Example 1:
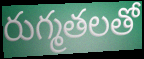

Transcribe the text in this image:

రుగ్మతలతో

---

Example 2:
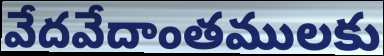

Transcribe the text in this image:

వేదవేదాంతములకు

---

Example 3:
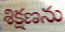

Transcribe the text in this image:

శిక్షణను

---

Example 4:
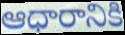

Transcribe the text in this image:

ఆధారానికి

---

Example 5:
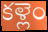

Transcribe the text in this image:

కళ్లెం